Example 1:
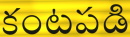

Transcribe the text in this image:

కంటపడి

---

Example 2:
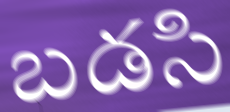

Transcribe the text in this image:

బడసి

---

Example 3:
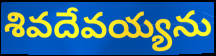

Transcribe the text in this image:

శివదేవయ్యను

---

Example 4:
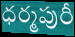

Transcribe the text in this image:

ధర్మపురీ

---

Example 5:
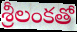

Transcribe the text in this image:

శ్రీలంకతో